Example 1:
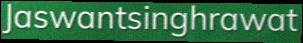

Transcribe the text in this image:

Jaswantsinghrawat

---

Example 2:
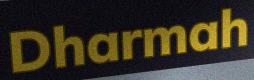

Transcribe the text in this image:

Dharmah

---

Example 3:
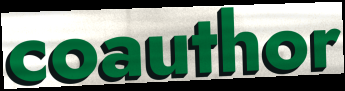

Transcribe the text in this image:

coauthor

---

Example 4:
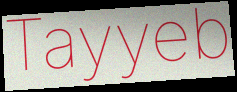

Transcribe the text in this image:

Tayyeb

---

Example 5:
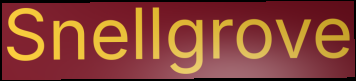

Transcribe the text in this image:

Snellgrove